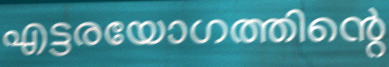
എട്ടരയോഗത്തിന്റെ